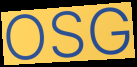
OSG